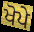
ਖੋਪੇ